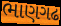
ભાણગઢ